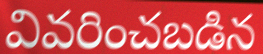
వివరించబడిన